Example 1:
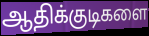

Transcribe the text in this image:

ஆதிக்குடிகளை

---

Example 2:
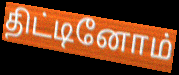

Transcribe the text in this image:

திட்டினோம்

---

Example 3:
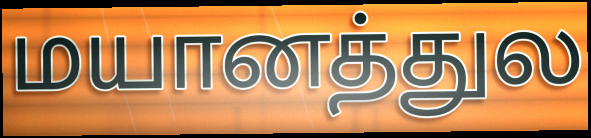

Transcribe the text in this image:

மயானத்துல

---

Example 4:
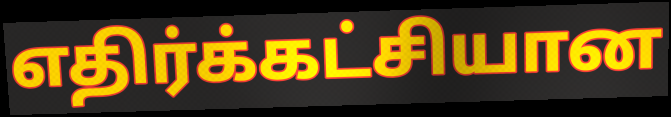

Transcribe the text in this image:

எதிர்க்கட்சியான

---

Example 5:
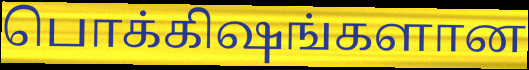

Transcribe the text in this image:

பொக்கிஷங்களான